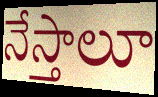
నేస్తాలూ